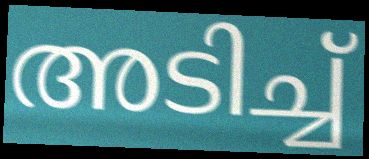
അടിച്ച്